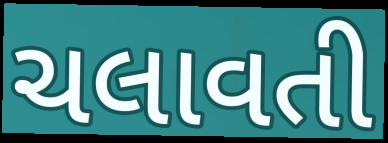
ચલાવતી